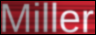
Miller